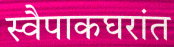
स्वैपाकघरांत